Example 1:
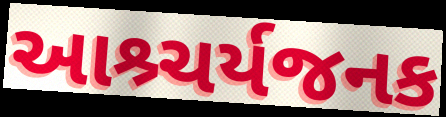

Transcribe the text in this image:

આશ્ર્ચર્યજનક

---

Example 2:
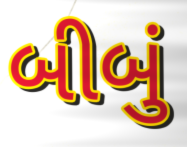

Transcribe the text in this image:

બીબું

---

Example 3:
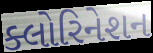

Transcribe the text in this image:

ક્લોરિનેશન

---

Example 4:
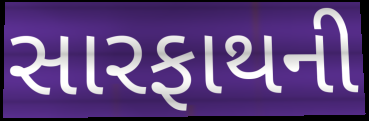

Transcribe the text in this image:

સારફાથની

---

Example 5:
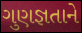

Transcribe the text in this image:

ગુણજ્ઞતાને